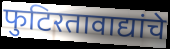
फुटिरतावाद्यांचे